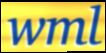
wml